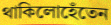
থাকিলোহেঁতেন